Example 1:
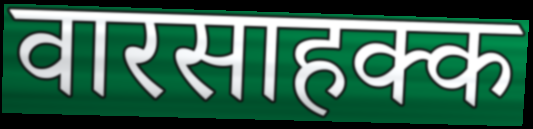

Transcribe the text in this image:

वारसाहक्क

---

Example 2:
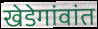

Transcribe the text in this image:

खेडेगांवांत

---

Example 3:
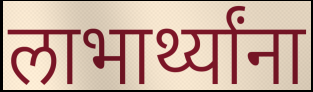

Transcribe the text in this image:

लाभार्थ्यांना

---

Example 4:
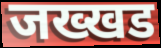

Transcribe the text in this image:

जख्खड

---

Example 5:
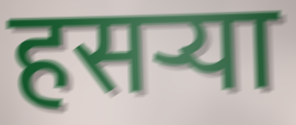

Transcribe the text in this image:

हसऱ्या